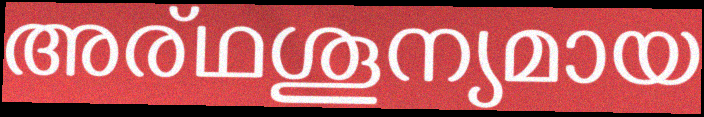
അര്ഥശൂന്യമായ